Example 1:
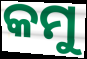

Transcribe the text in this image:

କମୁ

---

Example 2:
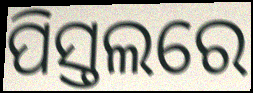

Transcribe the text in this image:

ପିସ୍ତଲରେ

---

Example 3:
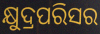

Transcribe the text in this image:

କ୍ଷୁଦ୍ରପରିସର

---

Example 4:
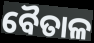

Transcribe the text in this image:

ବୈତାଳ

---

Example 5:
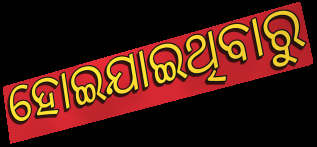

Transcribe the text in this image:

ହୋଇଯାଇଥିବାରୁ